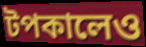
টপকালেও